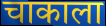
चाकाला